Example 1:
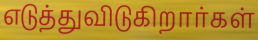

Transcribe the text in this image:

எடுத்துவிடுகிறார்கள்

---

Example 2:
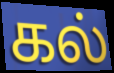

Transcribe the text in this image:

கல்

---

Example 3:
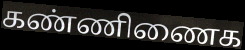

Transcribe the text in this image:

கண்ணிணைக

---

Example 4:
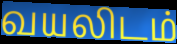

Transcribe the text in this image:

வயலிடம்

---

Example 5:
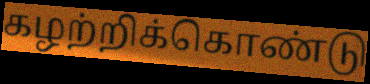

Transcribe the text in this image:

கழற்றிக்கொண்டு